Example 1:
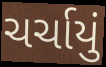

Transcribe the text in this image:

ચર્ચાયું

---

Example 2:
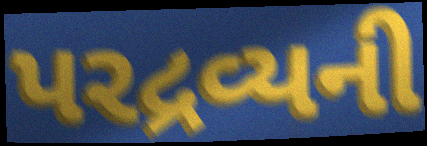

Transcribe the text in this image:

પરદ્રવ્યની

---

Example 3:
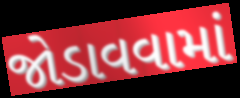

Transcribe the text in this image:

જોડાવવામાં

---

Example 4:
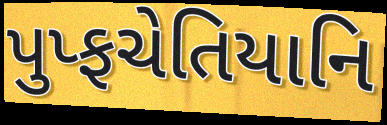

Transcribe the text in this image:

પુપ્ફચેતિયાનિ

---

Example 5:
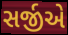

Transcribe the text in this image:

સર્જીએ